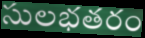
సులభతరం